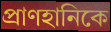
প্রাণহানিকে